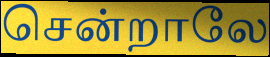
சென்றாலே